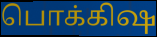
பொக்கிஷ